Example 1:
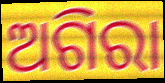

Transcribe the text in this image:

ଅଗିରା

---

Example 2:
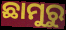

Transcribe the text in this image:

ଛାମୁରୁ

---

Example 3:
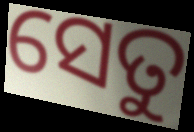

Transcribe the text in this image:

ସେତୁ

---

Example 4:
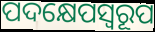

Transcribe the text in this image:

ପଦକ୍ଷେପସ୍ୱରୂପ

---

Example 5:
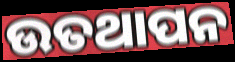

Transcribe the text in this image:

ଉତଥାପନ